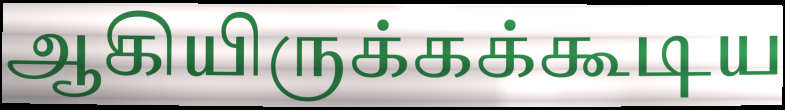
ஆகியிருக்கக்கூடிய